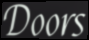
Doors